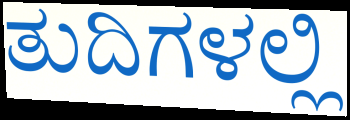
ತುದಿಗಳಲ್ಲಿ